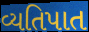
વ્યતિપાત